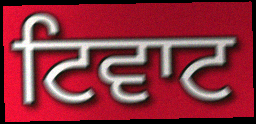
ਟਿਵਾਟ